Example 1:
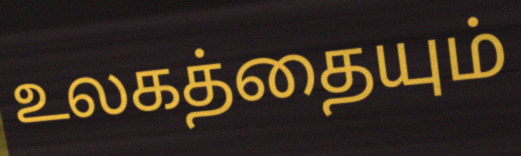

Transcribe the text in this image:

உலகத்தையும்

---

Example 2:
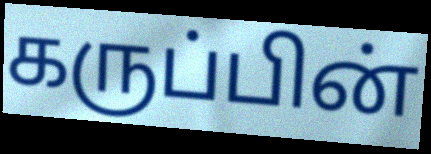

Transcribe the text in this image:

கருப்பின்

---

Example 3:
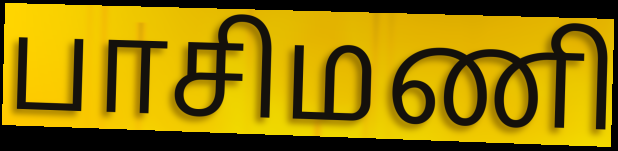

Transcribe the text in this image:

பாசிமணி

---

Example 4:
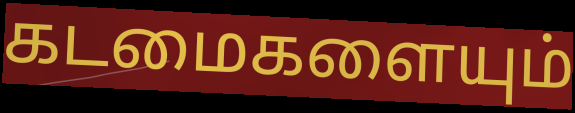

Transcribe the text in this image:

கடமைகளையும்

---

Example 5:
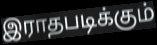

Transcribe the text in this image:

இராதபடிக்கும்